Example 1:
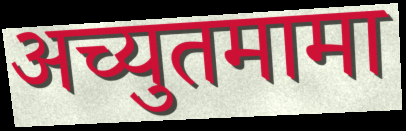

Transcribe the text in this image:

अच्युतमामा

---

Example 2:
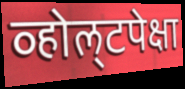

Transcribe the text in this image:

व्होल्टपेक्षा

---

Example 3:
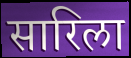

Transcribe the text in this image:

सारिला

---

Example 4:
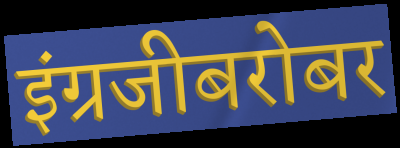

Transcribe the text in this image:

इंग्रजीबरोबर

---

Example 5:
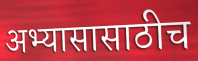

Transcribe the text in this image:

अभ्यासासाठीच